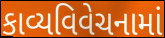
કાવ્યવિવેચનામાં